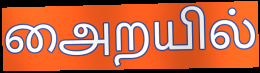
அைறயில்